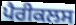
ਪੈਰੀਕਲਸ